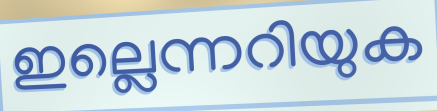
ഇല്ലെന്നറിയുക